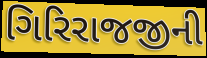
ગિરિરાજજીની